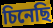
চিনেছি